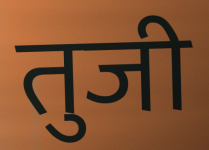
तुजी